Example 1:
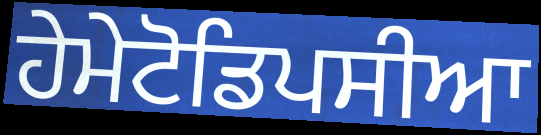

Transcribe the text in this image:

ਹੇਮੇਟੋਡਿਪਸੀਆ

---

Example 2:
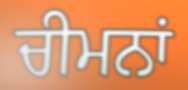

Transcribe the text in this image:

ਚੀਮਨਾਂ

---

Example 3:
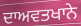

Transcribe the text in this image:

ਦਾਅਵਤਖਾਨੇ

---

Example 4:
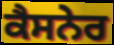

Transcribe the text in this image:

ਕੈਸਨੇਰ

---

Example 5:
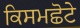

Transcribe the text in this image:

ਕਿਸਮਛੋਟੇ